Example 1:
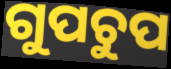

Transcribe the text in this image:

ଗୁପଚୁପ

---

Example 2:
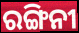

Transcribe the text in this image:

ରଙ୍ଗିନୀ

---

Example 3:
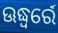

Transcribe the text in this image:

ଊଦ୍ଧ୍ୱର୍ରେ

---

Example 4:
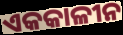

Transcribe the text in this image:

ଏକକାଳୀନ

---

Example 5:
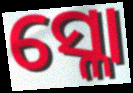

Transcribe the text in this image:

ସ୍ଳୋ